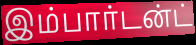
இம்பார்டன்ட்